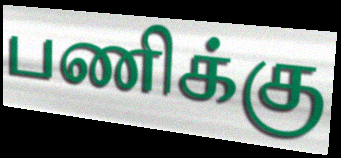
பணிக்கு